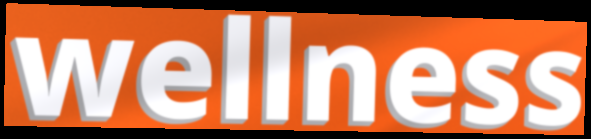
wellness